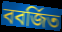
ববর্জিত